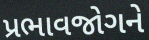
પ્રભાવજોગને